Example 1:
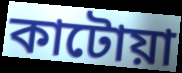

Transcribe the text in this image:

কাটোয়া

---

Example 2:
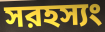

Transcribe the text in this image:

সরহস্যং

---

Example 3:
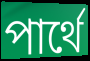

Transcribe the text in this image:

পার্থে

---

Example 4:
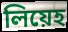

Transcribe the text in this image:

লিয়েহ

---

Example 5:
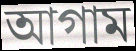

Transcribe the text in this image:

আগাম